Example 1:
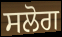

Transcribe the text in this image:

ਸਲੋਗ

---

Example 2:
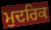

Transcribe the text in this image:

ਮੁਦਰਿਕ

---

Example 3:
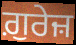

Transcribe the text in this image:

ਗ਼ੁਰੇਜ਼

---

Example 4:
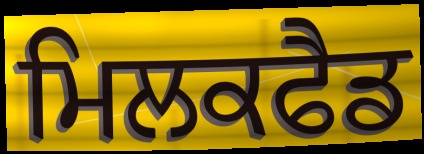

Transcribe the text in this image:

ਮਿਲਕਫੈਡ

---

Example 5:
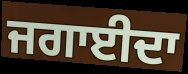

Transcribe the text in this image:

ਜਗਾਈਦਾ